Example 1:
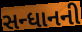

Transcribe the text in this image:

સન્ધાનની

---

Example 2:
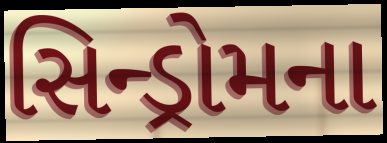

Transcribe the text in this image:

સિન્ડ્રોમના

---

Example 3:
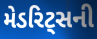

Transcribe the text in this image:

મેડરિટ્સની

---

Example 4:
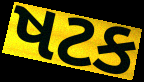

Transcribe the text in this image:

ષટક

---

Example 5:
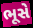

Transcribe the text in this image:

ભૂસે